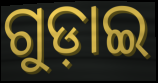
ଗୁଡ଼ାଇ